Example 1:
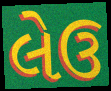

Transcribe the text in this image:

લેઉ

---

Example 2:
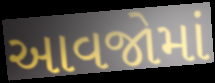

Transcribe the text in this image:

આવજોમાં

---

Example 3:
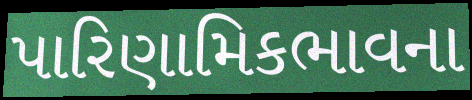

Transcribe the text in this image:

પારિણામિકભાવના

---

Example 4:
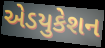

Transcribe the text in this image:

એડયુકેશન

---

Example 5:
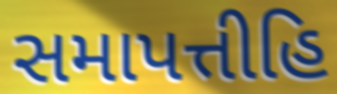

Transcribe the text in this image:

સમાપત્તીહિ